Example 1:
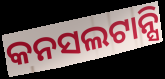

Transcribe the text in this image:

କନସଲଟାନ୍ସି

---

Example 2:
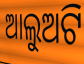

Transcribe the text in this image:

ଆଲୁଅଟି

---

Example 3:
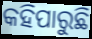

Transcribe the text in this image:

କହିପାରୁଛି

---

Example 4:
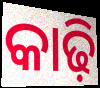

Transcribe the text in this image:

କାଢ଼ି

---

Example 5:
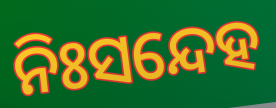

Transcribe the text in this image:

ନିଃସନ୍ଦେହ